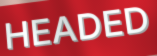
HEADED